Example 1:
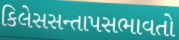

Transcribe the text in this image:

કિલેસસન્તાપસભાવતો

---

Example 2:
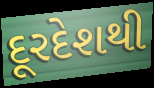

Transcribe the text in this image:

દૂરદેશથી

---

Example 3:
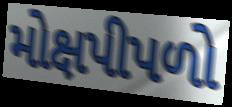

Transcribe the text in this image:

મોક્ષપીપળો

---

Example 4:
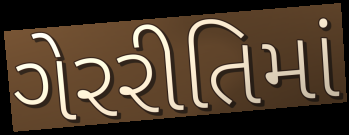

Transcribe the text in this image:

ગેરરીતિમાં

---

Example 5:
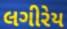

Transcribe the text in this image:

લગીરેય